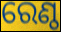
ରେଣ୍ଠ